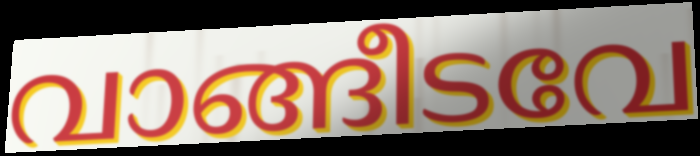
വാങ്ങീടവേ